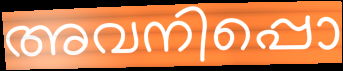
അവനിപ്പൊ